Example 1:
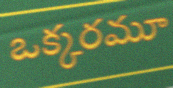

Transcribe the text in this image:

ఒక్కరమూ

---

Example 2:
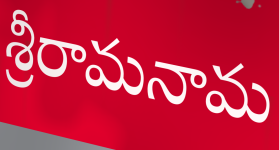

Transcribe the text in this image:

శ్రీరామనామ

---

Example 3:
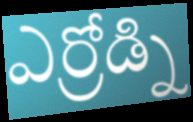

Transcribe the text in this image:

ఎర్రోడ్ని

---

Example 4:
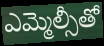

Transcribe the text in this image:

ఎమ్మెల్సీతో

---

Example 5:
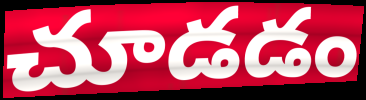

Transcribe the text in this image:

చూడడం